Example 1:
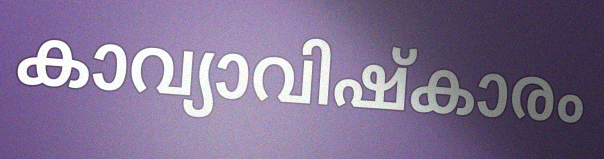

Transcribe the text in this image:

കാവ്യാവിഷ്കാരം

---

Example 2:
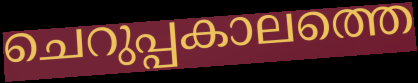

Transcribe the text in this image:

ചെറുപ്പകാലത്തെ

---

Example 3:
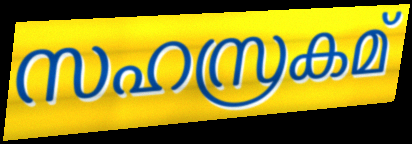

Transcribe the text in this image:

സഹസ്രകമ്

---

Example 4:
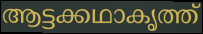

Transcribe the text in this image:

ആട്ടക്കഥാകൃത്ത്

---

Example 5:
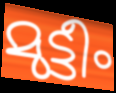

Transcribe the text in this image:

മുട്ടീം